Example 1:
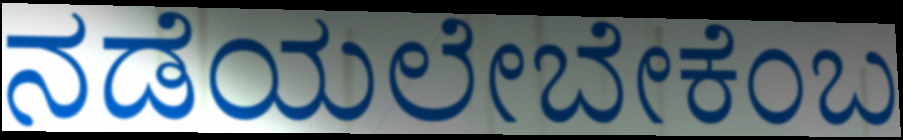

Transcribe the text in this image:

ನಡೆಯಲೇಬೇಕೆಂಬ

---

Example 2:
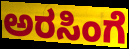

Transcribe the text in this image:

ಅರಸಿಂಗೆ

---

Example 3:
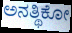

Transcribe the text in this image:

ಅನತ್ಥಿಕೋ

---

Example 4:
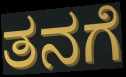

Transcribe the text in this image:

ತನಗೆ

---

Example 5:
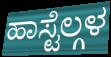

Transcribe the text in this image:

ಹಾಸ್ಟೆಲ್ಗಳ